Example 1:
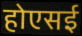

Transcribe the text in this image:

होएसई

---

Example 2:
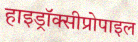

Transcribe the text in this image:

हाइड्रॉक्सीप्रोपाइल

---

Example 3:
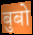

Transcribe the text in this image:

बुबो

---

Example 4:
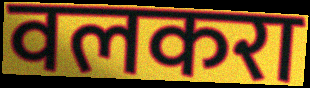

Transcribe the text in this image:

वलकरा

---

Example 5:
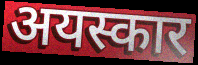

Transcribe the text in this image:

अयस्कार